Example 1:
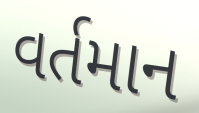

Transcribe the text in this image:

વર્તમાન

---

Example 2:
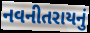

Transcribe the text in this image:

નવનીતરાયનું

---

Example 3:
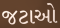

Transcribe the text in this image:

જટાઓ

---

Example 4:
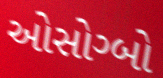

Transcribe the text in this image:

ઓસોગ્બો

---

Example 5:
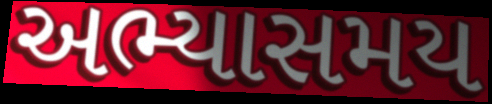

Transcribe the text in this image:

અભ્યાસમય